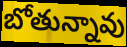
బోతున్నావు